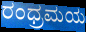
ರಂಧ್ರಮಯ